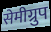
सेमीग्रुप